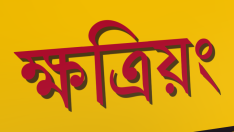
ক্ষত্রিয়ং